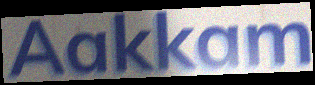
Aakkam